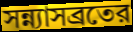
সন্ন্যাসব্রতের